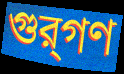
গুর্‌গণ